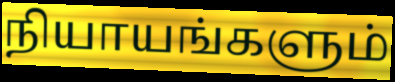
நியாயங்களும்